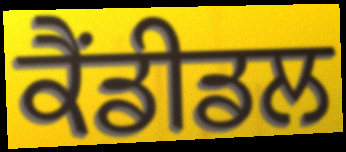
ਕੈਂਡੀਡਲ